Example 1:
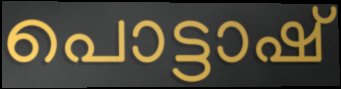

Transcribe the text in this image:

പൊട്ടാഷ്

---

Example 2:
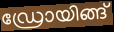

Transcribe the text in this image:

ഡ്രോയിങ്ങ്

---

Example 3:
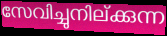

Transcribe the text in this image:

സേവിച്ചുനില്ക്കുന്ന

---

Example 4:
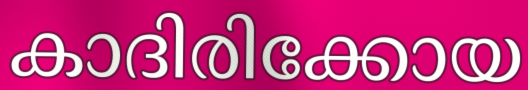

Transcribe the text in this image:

കാദിരിക്കോയ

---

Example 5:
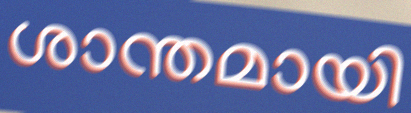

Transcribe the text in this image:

ശാന്തമായി